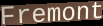
Fremont